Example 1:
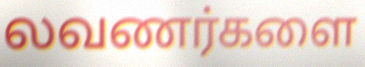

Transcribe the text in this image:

லவணர்களை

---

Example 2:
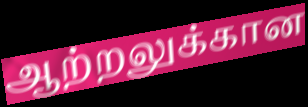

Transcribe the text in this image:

ஆற்றலுக்கான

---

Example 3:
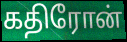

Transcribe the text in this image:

கதிரோன்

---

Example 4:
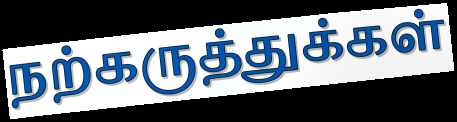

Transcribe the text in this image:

நற்கருத்துக்கள்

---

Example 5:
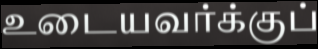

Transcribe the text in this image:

உடையவர்க்குப்